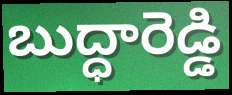
బుద్ధారెడ్డి